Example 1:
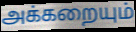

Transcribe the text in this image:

அக்கறையும்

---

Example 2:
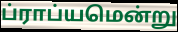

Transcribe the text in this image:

ப்ராப்யமென்று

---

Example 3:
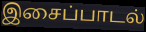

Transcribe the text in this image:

இசைப்பாடல்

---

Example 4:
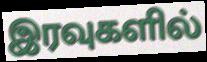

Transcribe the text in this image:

இரவுகளில்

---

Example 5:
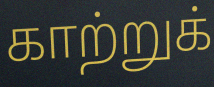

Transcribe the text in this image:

காற்றுக்